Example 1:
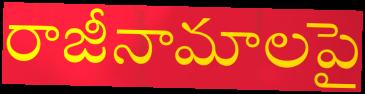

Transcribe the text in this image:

రాజీనామాలపై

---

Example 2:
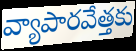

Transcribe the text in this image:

వ్యాపారవేత్తకు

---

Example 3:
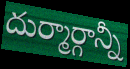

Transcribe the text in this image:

దుర్మార్గాన్నీ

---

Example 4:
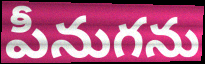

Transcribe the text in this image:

పీనుగను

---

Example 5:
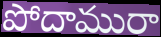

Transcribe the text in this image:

పోదామురా